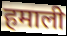
हमाली